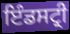
ਇੰਡਸਟ੍ਰੀ